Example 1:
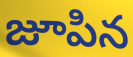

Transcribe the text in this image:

జూపిన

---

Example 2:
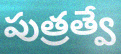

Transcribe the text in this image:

పుత్రత్వే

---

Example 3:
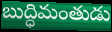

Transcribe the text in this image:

బుద్ధిమంతుడు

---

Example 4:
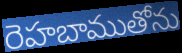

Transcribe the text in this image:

రెహబాముతోను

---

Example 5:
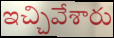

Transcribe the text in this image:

ఇచ్చివేశారు